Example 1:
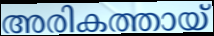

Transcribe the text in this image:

അരികത്തായ്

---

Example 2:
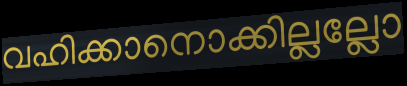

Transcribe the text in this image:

വഹിക്കാനൊക്കില്ലല്ലോ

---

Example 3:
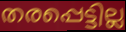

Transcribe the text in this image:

തരപ്പെട്ടില്ല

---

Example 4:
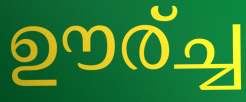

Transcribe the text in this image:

ഊര്ച്ച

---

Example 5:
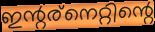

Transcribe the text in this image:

ഇന്റര്നെറ്റിന്റെ